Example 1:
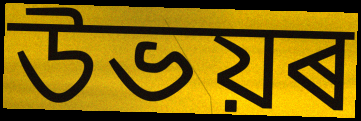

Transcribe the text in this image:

উভয়ৰ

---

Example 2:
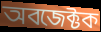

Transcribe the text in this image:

অবজেক্টক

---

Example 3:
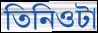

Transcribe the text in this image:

তিনিওটা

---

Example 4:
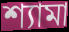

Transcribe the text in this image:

শ্যামা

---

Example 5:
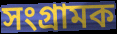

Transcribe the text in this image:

সংগ্ৰামক